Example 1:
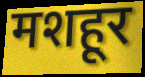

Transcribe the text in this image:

मशहूर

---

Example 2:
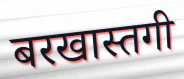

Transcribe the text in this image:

बरखास्तगी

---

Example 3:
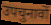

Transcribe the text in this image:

उपचुनावों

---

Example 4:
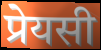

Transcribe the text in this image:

प्रेयसी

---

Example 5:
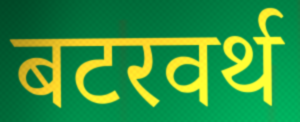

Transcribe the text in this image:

बटरवर्थ